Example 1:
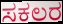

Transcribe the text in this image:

ಸಕಲರ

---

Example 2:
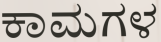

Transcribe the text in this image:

ಕಾಮಗಳ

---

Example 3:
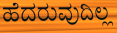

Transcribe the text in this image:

ಹೆದರುವುದಿಲ್ಲ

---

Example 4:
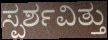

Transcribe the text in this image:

ಸ್ಪರ್ಶವಿತ್ತು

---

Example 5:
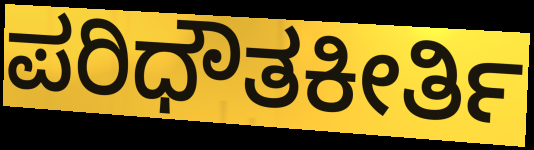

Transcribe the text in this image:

ಪರಿಧೌತಕೀರ್ತಿ